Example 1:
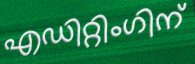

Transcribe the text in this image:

എഡിറ്റിംഗിന്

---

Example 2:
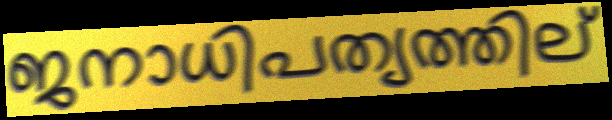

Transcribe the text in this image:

ജനാധിപത്യത്തില്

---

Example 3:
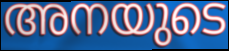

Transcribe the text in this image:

അനയുടെ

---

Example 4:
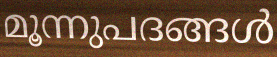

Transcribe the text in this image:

മൂന്നുപദങ്ങൾ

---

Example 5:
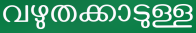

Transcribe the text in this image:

വഴുതക്കാടുള്ള